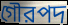
গৌরপদ